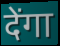
देंगा